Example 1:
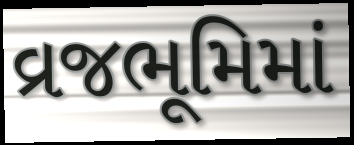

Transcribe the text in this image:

વ્રજભૂમિમાં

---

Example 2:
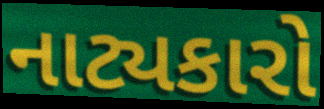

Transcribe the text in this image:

નાટ્યકારો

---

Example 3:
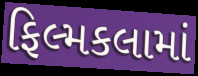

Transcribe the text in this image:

ફિલ્મકલામાં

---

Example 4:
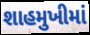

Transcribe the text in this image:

શાહમુખીમાં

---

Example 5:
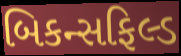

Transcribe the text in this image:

બિકન્સફિલ્ડ